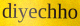
diyechho